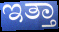
ಇತ್ತಾ